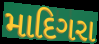
માદિગરા